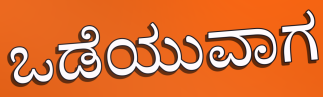
ಒಡೆಯುವಾಗ